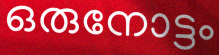
ഒരുനോട്ടം